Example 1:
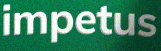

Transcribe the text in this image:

impetus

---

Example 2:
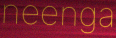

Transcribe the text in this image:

neenga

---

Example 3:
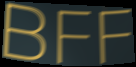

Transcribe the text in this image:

BFF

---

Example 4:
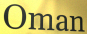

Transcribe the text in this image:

Oman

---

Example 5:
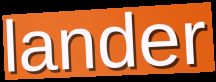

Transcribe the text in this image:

lander